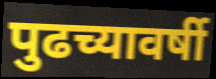
पुढच्यावर्षी